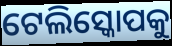
ଟେଲିସ୍କୋପକୁ